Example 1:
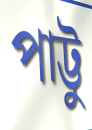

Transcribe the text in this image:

পাট্টু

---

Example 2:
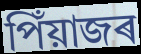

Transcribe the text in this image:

পিঁয়াজৰ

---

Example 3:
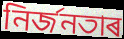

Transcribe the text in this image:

নিৰ্জনতাৰ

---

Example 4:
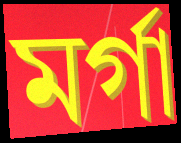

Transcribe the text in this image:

মৰ্গা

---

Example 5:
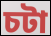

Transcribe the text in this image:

চটা